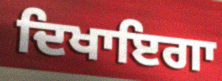
ਦਿਖਾਇਗਾ